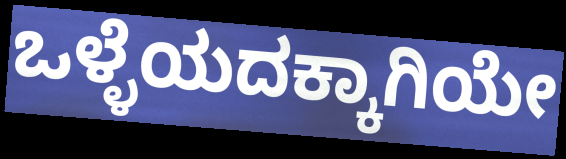
ಒಳ್ಳೆಯದಕ್ಕಾಗಿಯೇ